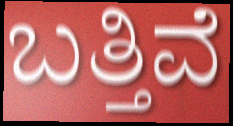
ಬತ್ತಿವೆ